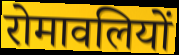
रोमावलियों